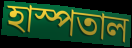
হাস্পতাল